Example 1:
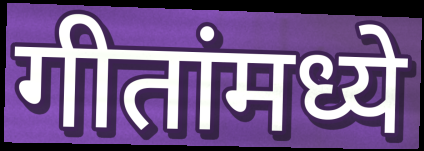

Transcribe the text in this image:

गीतांमध्ये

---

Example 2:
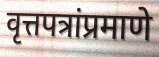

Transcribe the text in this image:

वृत्तपत्रांप्रमाणे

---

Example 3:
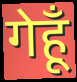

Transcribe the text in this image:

गेहूँ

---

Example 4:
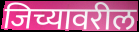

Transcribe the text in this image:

जिच्यावरील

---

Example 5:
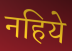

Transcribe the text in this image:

नहिये